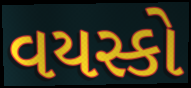
વયસ્કો